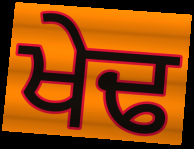
ਖੇਢ